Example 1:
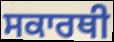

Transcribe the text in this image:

ਸਕਾਰਥੀ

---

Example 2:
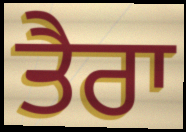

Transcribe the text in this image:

ਤੈਰਾ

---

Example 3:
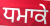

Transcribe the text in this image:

ਧਮਾਕੇ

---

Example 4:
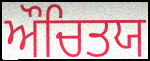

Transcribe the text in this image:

ਔਚਿਤਯ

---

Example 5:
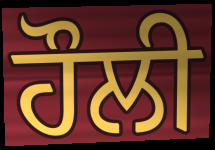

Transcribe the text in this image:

ਹੌਲੀ